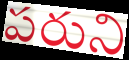
పరుని